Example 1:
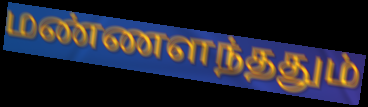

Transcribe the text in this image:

மண்ணளந்ததும்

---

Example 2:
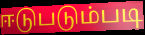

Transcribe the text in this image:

ஈடுபடும்படி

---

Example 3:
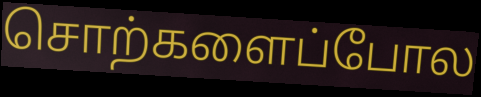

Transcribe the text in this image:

சொற்களைப்போல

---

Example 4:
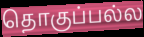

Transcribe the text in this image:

தொகுப்பல்ல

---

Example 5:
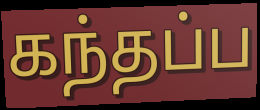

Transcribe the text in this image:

கந்தப்ப